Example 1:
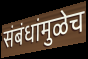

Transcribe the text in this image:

संबंधांमुळेच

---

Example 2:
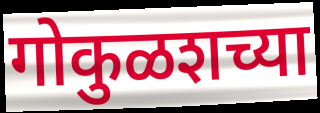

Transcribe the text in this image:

गोकुळशच्या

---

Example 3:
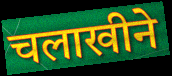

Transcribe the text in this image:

चलाखीने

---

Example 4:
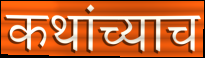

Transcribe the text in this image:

कथांच्याच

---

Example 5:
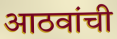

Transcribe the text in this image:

आठवांची